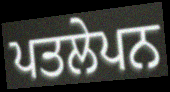
ਪਤਲੇਪਨ